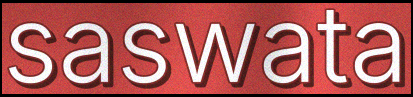
saswata